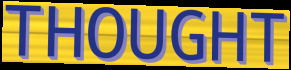
THOUGHT